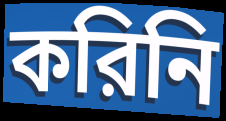
করিনি